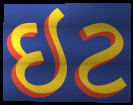
ઇટ